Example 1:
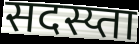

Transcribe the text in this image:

सदस्य्ता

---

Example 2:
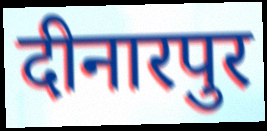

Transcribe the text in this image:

दीनारपुर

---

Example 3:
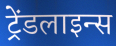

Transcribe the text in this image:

ट्रेंडलाइन्स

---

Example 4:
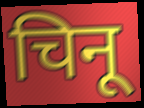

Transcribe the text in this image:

चिनू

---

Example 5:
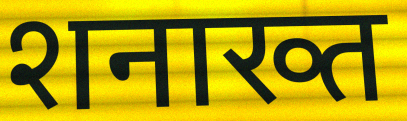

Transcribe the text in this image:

शनाख्त